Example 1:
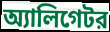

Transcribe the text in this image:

অ্যালিগেটর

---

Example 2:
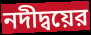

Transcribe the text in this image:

নদীদ্বয়ের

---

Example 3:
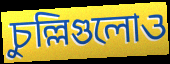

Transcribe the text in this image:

চুল্লিগুলোও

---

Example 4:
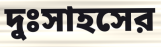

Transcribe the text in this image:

দুঃসাহসের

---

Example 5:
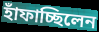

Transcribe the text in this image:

হাঁফাচ্ছিলেন